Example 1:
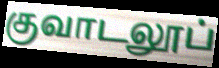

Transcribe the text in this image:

குவாடலூப்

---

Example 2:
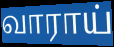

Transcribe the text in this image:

வாராய்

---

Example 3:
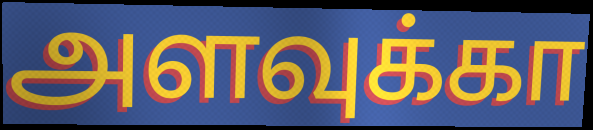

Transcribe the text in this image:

அளவுக்கா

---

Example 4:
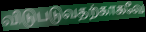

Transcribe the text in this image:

விடுபடுவதற்காகவே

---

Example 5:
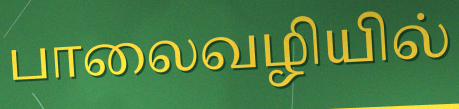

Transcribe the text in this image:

பாலைவழியில்